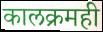
कालक्रमही